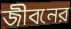
জীবনের